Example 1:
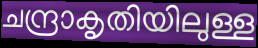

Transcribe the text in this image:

ചന്ദ്രാകൃതിയിലുള്ള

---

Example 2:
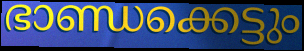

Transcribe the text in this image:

ഭാണ്ഡക്കെട്ടും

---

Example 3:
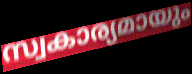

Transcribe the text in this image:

സ്വകാര്യമായും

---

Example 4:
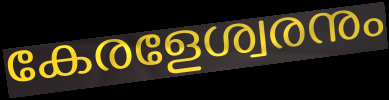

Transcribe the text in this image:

കേരളേശ്വരനും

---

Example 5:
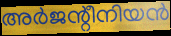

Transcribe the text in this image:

അർജന്റീനിയൻ